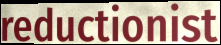
reductionist